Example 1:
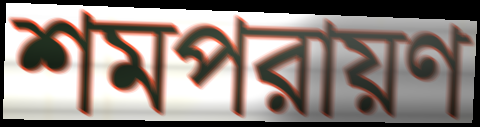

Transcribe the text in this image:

শমপরায়ণ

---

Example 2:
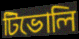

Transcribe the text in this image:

টিভোলি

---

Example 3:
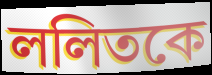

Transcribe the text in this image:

ললিতকে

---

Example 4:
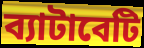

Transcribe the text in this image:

ব্যাটাবেটি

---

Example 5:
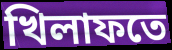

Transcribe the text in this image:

খিলাফতে